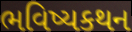
ભવિષ્યકથન